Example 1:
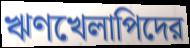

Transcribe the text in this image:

ঋণখেলাপিদের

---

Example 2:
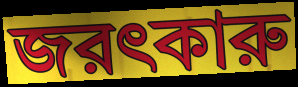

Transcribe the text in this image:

জরৎকারু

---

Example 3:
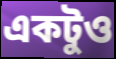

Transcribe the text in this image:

একটুও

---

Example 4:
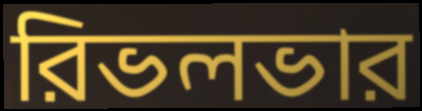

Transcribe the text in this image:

রিভলভার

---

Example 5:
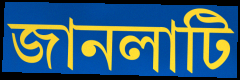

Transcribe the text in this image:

জানলাটি